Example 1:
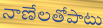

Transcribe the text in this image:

నాణేలతోపాటు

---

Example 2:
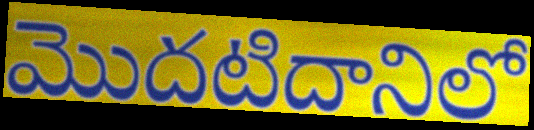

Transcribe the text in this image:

మొదటిదానిలో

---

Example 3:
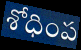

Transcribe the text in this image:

శోధింప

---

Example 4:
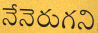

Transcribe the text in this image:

నేనెరుగని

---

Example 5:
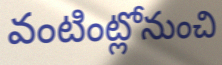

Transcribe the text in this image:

వంటింట్లోనుంచి